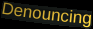
Denouncing